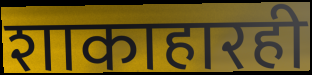
शाकाहारही